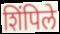
शिंपिले